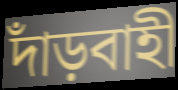
দাঁড়বাহী